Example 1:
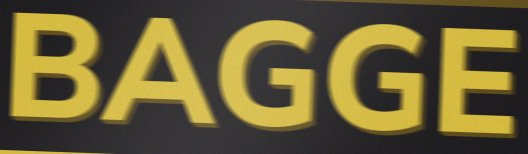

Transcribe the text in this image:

BAGGE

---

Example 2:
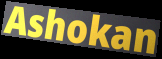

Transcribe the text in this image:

Ashokan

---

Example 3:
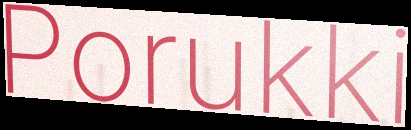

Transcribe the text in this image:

Porukki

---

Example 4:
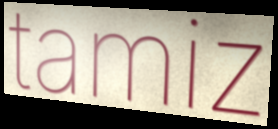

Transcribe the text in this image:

tamiz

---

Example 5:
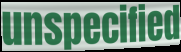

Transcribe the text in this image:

unspecified